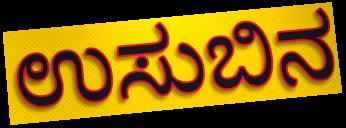
ಉಸುಬಿನ